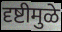
दृष्टीमुळे